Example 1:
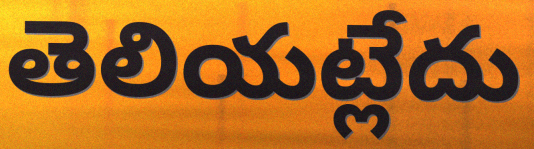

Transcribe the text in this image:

తెలియట్లేదు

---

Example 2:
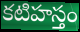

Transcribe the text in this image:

కటిహస్తం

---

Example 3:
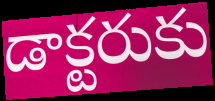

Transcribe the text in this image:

డాక్టరుకు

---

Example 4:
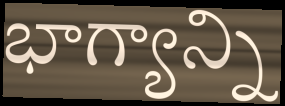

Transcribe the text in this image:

భాగ్యాన్ని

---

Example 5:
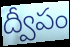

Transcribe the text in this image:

ద్వీపం